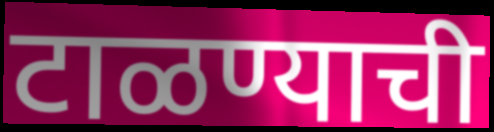
टाळण्याची